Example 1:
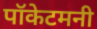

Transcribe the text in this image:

पॉकेटमनी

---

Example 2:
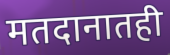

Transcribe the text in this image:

मतदानातही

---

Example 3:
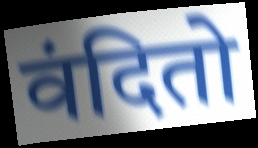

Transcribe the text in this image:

वंदितो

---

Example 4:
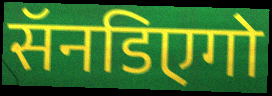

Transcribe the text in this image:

सॅनडिएगो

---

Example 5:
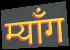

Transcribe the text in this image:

म्याँग